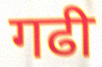
गढी